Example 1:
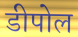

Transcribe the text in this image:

डीपोल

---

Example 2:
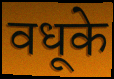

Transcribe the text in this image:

वधूके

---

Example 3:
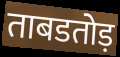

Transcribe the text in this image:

ताबडतोड़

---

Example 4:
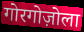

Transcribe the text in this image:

गोरगोज़ोला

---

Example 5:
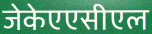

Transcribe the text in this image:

जेकेएएसीएल